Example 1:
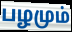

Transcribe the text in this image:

பழமும்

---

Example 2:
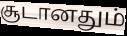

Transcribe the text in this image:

சூடானதும்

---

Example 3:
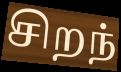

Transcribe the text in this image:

சிறந்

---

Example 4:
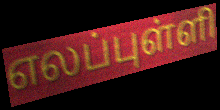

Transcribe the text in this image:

எலப்புள்ளி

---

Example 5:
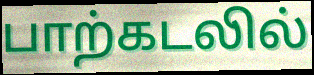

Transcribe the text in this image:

பாற்கடலில்